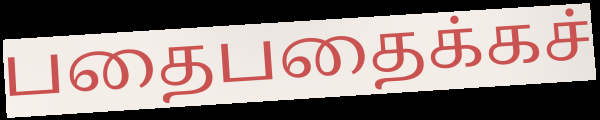
பதைபதைக்கச்